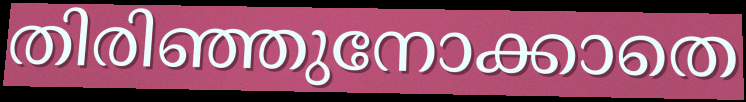
തിരിഞ്ഞുനോക്കാതെ